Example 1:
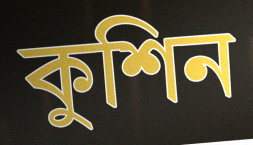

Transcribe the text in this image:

কুশিন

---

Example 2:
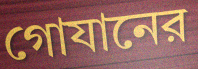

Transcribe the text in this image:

গোযানের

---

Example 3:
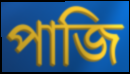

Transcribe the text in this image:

পাজি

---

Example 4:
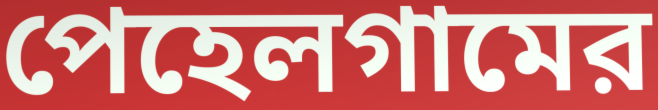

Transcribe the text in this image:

পেহেলগামের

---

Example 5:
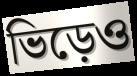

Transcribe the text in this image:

ভিড়েও